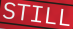
STILL